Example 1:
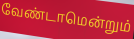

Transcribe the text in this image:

வேண்டாமென்றும்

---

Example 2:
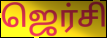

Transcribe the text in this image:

ஜெர்சி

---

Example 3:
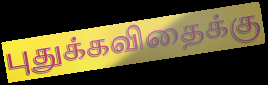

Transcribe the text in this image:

புதுக்கவிதைக்கு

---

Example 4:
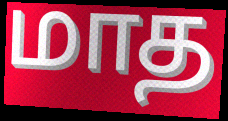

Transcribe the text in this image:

மாத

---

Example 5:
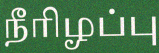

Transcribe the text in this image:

நீரிழப்பு